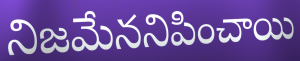
నిజమేననిపించాయి